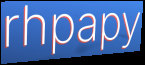
rhpapy